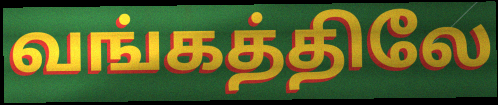
வங்கத்திலே